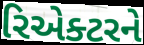
રિએક્ટરને